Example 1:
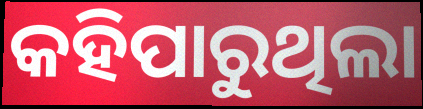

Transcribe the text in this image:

କହିପାରୁଥିଲା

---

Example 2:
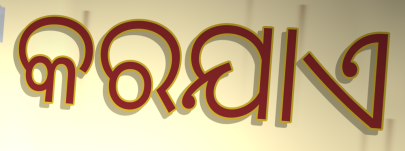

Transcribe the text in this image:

କରଯାଏ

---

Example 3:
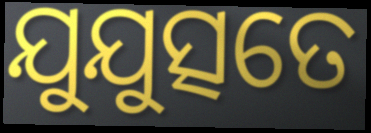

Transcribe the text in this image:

ଯୁଯୁତ୍ସତେ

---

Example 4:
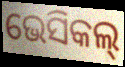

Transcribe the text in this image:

ଭେସିକଲ୍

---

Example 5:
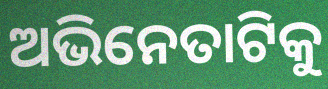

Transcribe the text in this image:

ଅଭିନେତାଟିକୁ